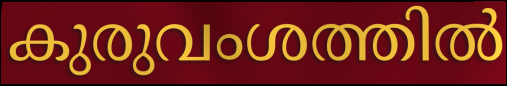
കുരുവംശത്തിൽ